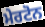
ਮੇਰਟੋਨ